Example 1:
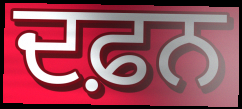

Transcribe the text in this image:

ਦਫ਼ਨ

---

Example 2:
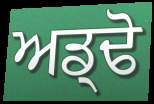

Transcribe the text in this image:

ਅਡ੍ਢੋ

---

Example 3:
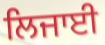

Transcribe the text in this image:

ਲਿਜਾਈ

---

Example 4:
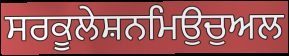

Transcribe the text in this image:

ਸਰਕੂਲੇਸ਼ਨਮਿਉਚੁਅਲ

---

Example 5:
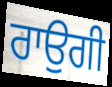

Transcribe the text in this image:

ਰਾਉਗੀ